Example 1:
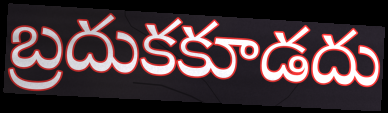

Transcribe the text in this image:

బ్రదుకకూడదు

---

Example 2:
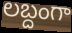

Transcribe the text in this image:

లబ్దంగా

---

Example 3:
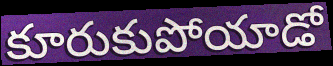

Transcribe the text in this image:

కూరుకుపోయాడో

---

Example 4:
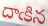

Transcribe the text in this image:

దాఁకిన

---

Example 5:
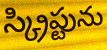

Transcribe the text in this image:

స్క్రిప్టును